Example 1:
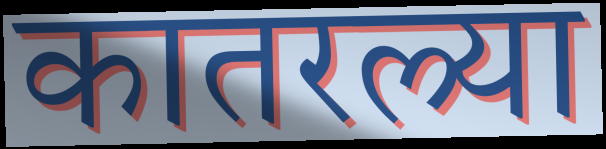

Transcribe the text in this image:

कातरल्या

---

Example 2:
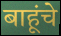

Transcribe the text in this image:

बाहूंचे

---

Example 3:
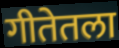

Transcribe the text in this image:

गीतेतला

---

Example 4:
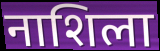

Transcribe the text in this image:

नाशिला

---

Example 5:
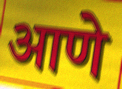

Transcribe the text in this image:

आणे